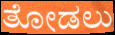
ತೋಡಲು